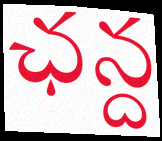
ఛన్ద